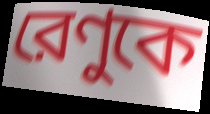
রেণুকে